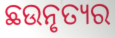
ଛଉନୃତ୍ୟର